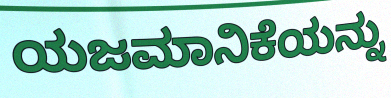
ಯಜಮಾನಿಕೆಯನ್ನು